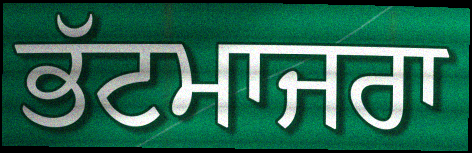
ਭੱਟਮਾਜਰਾ